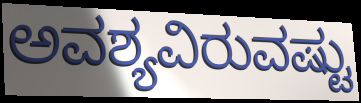
ಅವಶ್ಯವಿರುವಷ್ಟು